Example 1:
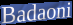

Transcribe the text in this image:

Badaoni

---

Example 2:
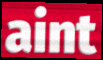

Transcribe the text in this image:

aint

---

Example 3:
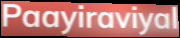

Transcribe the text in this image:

Paayiraviyal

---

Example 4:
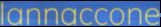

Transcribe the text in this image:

Iannaccone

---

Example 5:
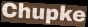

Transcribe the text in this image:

Chupke